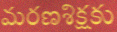
మరణశిక్షకు